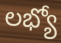
లభ్యో